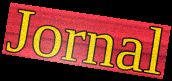
Jornal